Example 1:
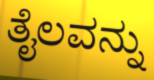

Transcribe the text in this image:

ತೈಲವನ್ನು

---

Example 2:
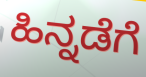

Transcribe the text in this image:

ಹಿನ್ನಡೆಗೆ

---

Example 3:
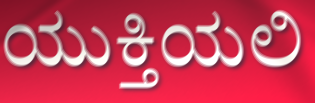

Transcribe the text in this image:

ಯುಕ್ತಿಯಲಿ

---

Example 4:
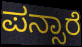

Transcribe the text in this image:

ಪನ್ಸಾರೆ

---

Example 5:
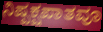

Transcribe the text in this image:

ನಿಷ್ಪಕ್ಷಪಾತವೂ